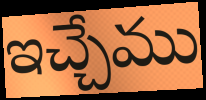
ఇచ్చేము